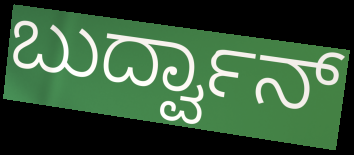
ಬುರ್ದ್ವಾನ್